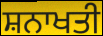
ਸ਼ਨਾਖਤੀ